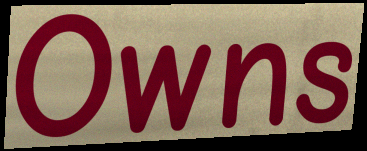
Owns